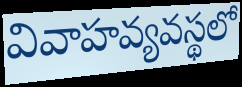
వివాహవ్యవస్థలో